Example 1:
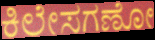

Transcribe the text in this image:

ಕಿಲೇಸಗಣೋ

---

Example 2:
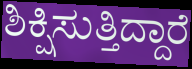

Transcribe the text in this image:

ಶಿಕ್ಷಿಸುತ್ತಿದ್ದಾರೆ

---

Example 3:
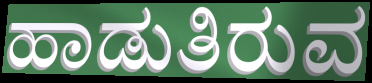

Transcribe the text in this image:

ಹಾಡುತಿರುವ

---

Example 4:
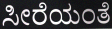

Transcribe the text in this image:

ಸೀರೆಯಂತೆ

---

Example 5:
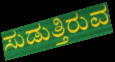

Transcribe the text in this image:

ಸುಡುತ್ತಿರುವ